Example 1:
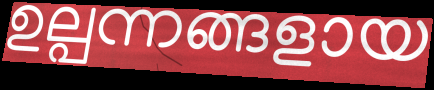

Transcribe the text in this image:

ഉല്പന്നങ്ങളായ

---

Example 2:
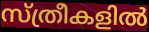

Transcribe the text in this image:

സ്ത്രീകളിൽ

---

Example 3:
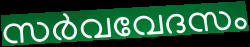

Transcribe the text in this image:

സർവവേദസം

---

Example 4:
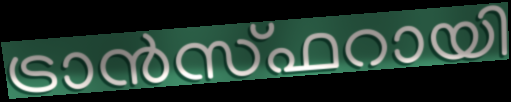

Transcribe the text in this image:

ട്രാൻസ്ഫറായി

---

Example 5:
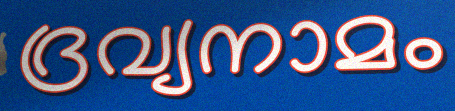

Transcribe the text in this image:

ദ്രവ്യനാമം